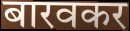
बारवकर